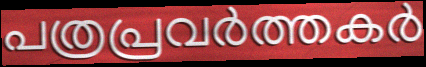
പത്രപ്രവർത്തകർ